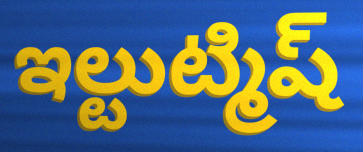
ఇల్టుట్మిష్